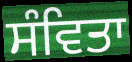
ਸੰਵਿਤਾ